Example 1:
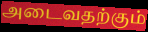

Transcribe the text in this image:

அடைவதற்கும்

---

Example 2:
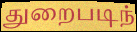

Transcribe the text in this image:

துறைபடிந்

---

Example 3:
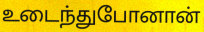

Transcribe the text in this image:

உடைந்துபோனான்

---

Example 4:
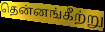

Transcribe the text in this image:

தென்னங்கீற்று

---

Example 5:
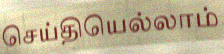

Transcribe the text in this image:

செய்தியெல்லாம்